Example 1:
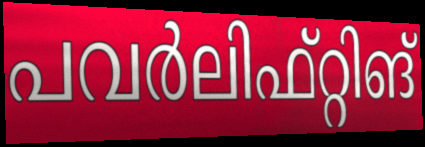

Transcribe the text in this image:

പവർലിഫ്റ്റിങ്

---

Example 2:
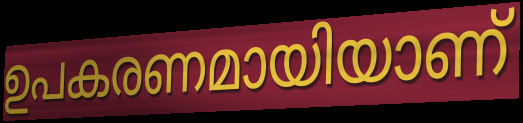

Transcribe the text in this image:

ഉപകരണമായിയാണ്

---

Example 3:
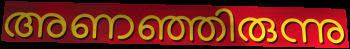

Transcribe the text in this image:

അണഞ്ഞിരുന്നു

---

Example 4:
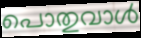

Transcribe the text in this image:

പൊതുവാൾ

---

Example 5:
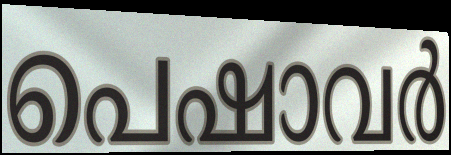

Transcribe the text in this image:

പെഷാവർ